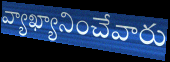
వ్యాఖ్యానించేవారు